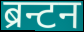
ब्रन्टन